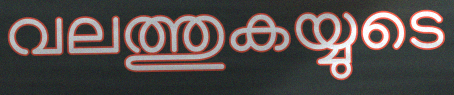
വലത്തുകയ്യുടെ